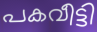
പകവീട്ടി